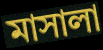
মাসালা